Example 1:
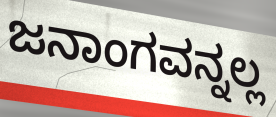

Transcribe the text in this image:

ಜನಾಂಗವನ್ನಲ್ಲ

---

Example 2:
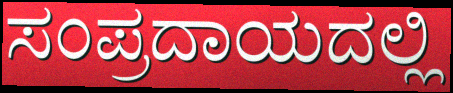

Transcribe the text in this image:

ಸಂಪ್ರದಾಯದಲ್ಲಿ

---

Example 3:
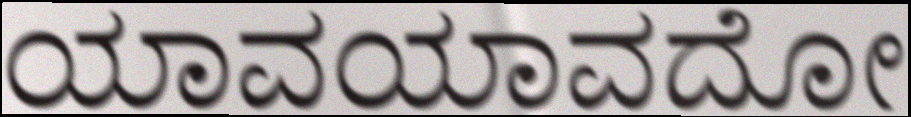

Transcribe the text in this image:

ಯಾವಯಾವದೋ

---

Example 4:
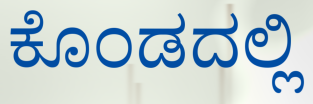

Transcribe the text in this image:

ಕೊಂಡದಲ್ಲಿ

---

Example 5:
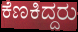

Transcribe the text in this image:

ಕೆಣಕಿದ್ದರು